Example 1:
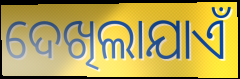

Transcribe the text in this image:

ଦେଖିଲାଯାଏଁ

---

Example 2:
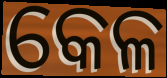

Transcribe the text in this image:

କେଳ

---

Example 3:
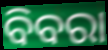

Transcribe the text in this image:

ବିବରା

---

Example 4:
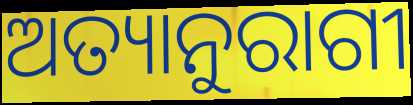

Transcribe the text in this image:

ଅତ୍ୟାନୁରାଗୀ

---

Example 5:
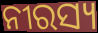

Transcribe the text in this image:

ନୀରସ୍ୟ